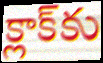
క్లాక్‌కు